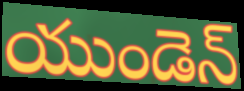
యుండెన్